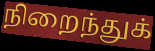
நிறைந்துக்